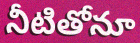
నీటితోనూ